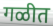
गळीत